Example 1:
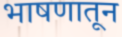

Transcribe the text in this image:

भाषणातून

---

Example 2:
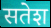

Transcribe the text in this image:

सतेश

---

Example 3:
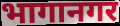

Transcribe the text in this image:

भागानगर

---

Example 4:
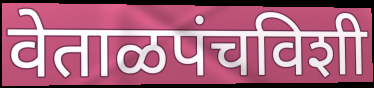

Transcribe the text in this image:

वेताळपंचविशी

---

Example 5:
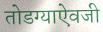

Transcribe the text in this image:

तोडग्याऐवजी